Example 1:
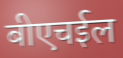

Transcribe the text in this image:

बीएचईल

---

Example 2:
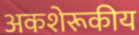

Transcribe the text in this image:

अकशेरूकीय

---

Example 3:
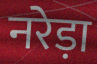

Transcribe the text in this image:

नरेड़ा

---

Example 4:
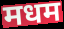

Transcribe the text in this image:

मधम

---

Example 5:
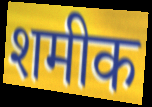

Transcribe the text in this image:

शमीक